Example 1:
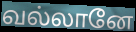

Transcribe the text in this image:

வல்லானே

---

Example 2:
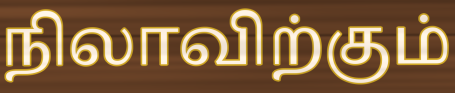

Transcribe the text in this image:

நிலாவிற்கும்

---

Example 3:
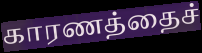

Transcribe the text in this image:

காரணத்தைச்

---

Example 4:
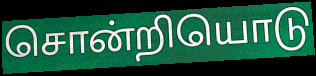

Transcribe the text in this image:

சொன்றியொடு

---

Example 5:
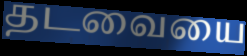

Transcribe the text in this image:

தடவையை